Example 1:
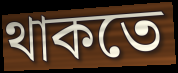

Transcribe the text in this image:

থাকতে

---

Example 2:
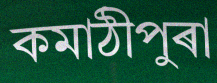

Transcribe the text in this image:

কমাঠীপুৰা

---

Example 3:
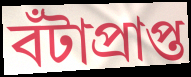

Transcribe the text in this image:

বঁটাপ্ৰাপ্ত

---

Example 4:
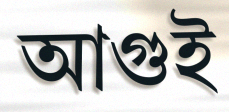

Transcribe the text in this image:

আগুই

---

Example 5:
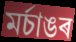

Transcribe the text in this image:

মৰ্চাঙৰ